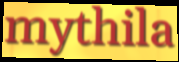
mythila